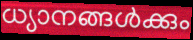
ധ്യാനങ്ങൾക്കും